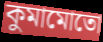
কুমামোতো